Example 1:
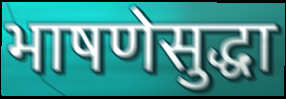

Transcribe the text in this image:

भाषणेसुद्धा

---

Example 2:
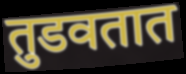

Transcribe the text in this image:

तुडवतात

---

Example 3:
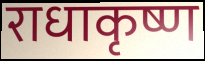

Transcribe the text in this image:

राधाकृष्ण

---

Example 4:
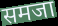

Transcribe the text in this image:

समजा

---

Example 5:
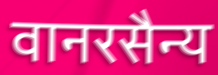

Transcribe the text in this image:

वानरसैन्य